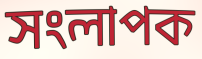
সংলাপক